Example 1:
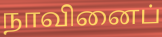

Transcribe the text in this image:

நாவினைப்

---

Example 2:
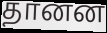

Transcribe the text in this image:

தானன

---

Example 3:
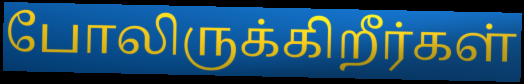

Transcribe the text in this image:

போலிருக்கிறீர்கள்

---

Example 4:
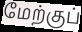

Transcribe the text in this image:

மேற்குப்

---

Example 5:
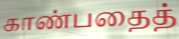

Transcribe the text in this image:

காண்பதைத்